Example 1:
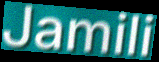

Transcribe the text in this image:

Jamili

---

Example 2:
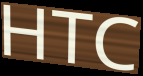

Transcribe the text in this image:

HTC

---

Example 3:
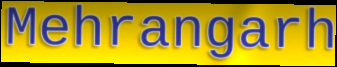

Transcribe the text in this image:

Mehrangarh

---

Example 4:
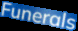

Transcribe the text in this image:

Funerals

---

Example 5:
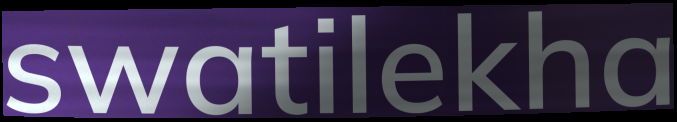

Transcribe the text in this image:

swatilekha